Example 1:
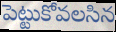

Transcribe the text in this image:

పెట్టుకోవలసిన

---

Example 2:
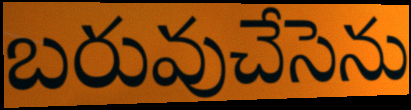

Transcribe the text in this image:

బరువుచేసెను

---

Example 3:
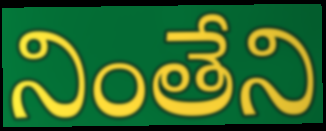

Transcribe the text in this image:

నింతేని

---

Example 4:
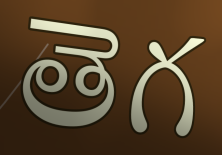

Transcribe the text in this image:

తెగ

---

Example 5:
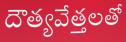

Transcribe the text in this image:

దౌత్యవేత్తలతో